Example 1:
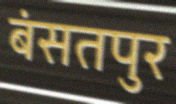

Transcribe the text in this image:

बंसतपुर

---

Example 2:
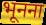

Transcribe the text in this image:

भूनना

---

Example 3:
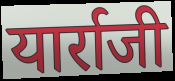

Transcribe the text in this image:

यार्राजी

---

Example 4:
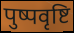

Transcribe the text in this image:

पुष्पवृष्टि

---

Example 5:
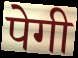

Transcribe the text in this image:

पेगी